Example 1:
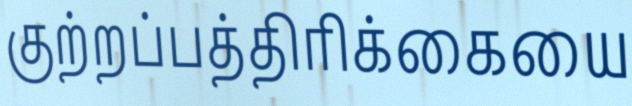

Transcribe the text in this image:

குற்றப்பத்திரிக்கையை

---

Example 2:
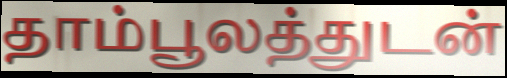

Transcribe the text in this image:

தாம்பூலத்துடன்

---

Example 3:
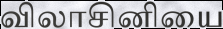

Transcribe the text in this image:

விலாசினியை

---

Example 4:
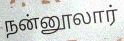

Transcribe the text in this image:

நன்னூலார்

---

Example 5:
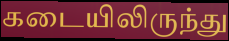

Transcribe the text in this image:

கடையிலிருந்து